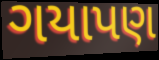
ગયાપણ